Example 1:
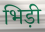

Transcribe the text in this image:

भिड़ी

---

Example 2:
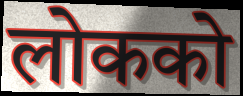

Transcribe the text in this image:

लोकको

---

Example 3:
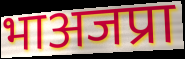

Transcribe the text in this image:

भाअजप्रा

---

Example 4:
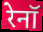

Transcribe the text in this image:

रेनॉ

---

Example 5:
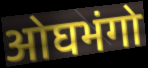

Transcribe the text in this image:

ओघभंगो